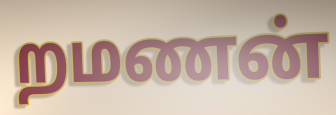
றமணன்